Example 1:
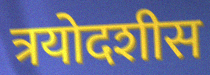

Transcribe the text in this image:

त्रयोदशीस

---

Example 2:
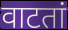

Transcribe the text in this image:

वाटतां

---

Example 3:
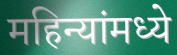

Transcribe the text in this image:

महिन्यांमध्ये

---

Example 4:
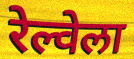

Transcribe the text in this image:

रेल्वेला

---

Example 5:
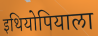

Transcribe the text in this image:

इथियोपियाला